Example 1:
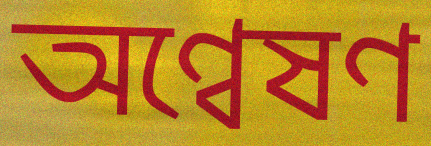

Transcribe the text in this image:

অণ্বেষণ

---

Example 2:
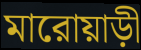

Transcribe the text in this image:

মারোয়াড়ী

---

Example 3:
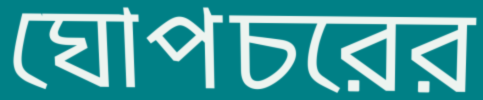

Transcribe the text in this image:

ঘোপচরের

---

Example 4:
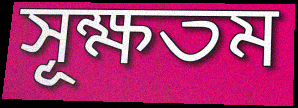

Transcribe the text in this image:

সূক্ষতম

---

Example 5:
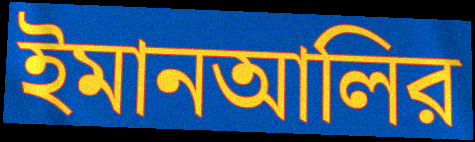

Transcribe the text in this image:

ইমানআলির